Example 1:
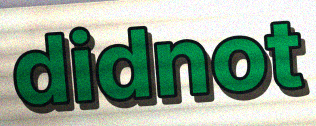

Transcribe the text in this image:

didnot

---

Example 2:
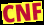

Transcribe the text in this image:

CNF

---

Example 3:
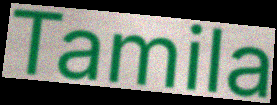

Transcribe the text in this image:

Tamila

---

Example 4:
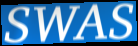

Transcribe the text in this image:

SWAS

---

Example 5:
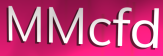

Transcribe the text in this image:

MMcfd